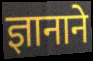
ज्ञानाने